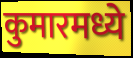
कुमारमध्ये